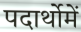
पदार्थोमें